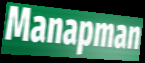
Manapman